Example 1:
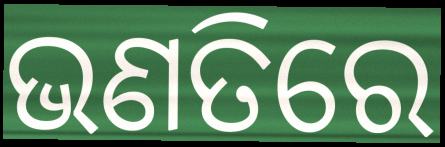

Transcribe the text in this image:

ଭଣତିରେ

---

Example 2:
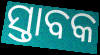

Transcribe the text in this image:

ସ୍ତାବକ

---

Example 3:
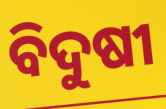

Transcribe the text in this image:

ବିଦୁଷୀ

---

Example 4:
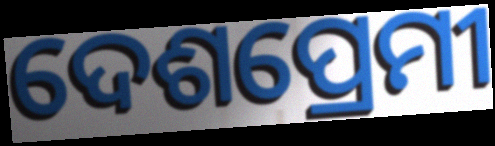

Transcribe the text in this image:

ଦେଶପ୍ରେମୀ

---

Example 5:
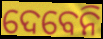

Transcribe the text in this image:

ଦେବେନି